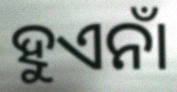
ହୁଏନାଁ